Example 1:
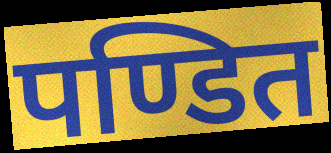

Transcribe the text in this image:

पण्डित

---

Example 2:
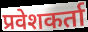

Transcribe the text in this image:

प्रवेशकर्ता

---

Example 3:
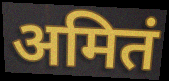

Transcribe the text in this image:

अमितं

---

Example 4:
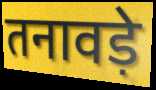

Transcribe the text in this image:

तनावड़े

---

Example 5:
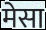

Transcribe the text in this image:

मेसा